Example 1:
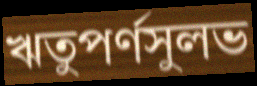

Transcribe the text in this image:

ঋতুপর্ণসুলভ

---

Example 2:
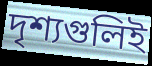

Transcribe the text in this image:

দৃশ্যগুলিই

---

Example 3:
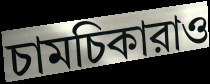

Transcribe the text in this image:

চামচিকারাও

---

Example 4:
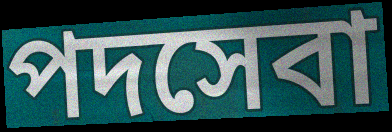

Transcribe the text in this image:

পদসেবা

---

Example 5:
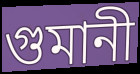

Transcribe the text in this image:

গুমানী